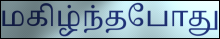
மகிழ்ந்தபோது